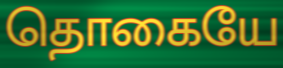
தொகையே